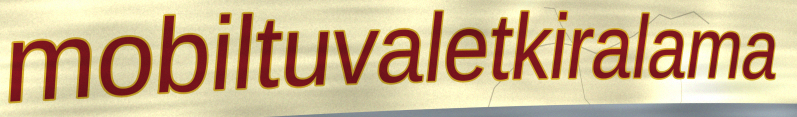
mobiltuvaletkiralama